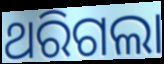
ଥରିଗଲା